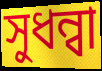
সুধন্বা